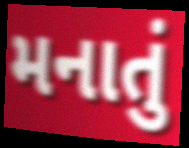
મનાતું